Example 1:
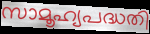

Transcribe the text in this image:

സാമൂഹ്യപദ്ധതി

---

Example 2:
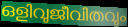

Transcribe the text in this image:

ഒളിവുജീവിതവും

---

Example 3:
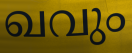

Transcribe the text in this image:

ഖവും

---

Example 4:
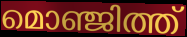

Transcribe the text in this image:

മൊഞ്ജിത്ത്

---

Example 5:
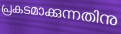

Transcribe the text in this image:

പ്രകടമാക്കുന്നതിനു